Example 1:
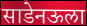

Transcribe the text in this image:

साडेनऊला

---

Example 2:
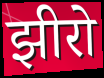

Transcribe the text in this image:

झीरो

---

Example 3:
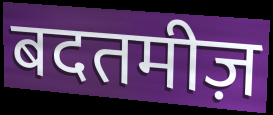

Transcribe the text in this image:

बदतमीज़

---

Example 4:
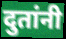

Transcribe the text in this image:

दुतांनी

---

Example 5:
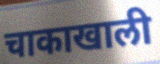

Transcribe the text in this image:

चाकाखाली